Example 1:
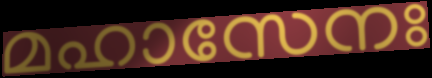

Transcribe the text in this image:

മഹാസേനഃ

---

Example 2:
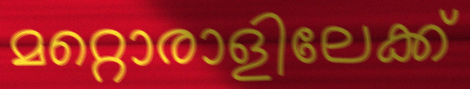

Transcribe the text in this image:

മറ്റൊരാളിലേക്ക്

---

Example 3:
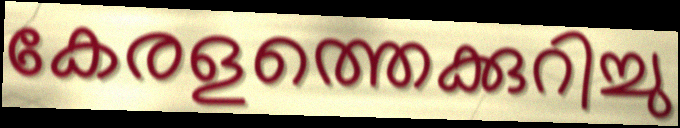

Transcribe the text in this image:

കേരളത്തെക്കുറിച്ചു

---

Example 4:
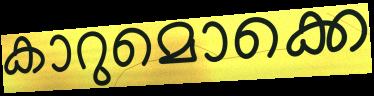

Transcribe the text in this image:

കാറുമൊക്കെ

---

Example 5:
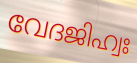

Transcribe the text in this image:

വേദജിഹ്വഃ